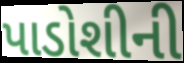
પાડોશીની